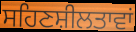
ਸਹਿਣਸ਼ੀਲਤਾਵਾਂ